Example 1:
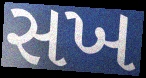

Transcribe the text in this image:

સખ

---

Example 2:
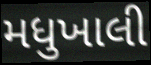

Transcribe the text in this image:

મધુખાલી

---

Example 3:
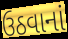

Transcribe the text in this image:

ઉઠવાનાં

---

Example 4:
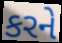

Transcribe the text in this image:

કરને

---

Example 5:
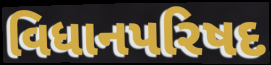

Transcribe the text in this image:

વિધાનપરિષદ